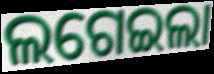
ଲଗେଇଲା